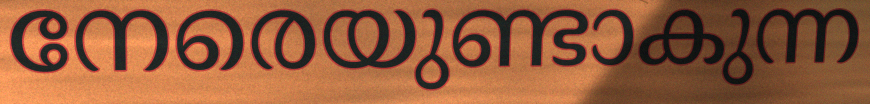
നേരെയുണ്ടാകുന്ന